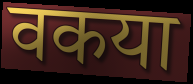
वकया